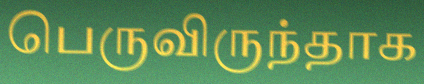
பெருவிருந்தாக